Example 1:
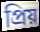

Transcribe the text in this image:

প্রিয়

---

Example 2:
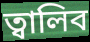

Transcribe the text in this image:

ত্বালিব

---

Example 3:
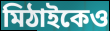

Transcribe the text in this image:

মিঠাইকেও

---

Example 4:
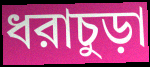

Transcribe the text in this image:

ধরাচুড়া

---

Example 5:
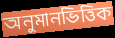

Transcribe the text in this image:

অনুমানভিত্তিক